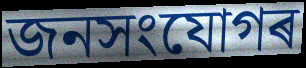
জনসংযোগৰ